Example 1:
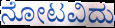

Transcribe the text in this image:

ನೋಟವಿದು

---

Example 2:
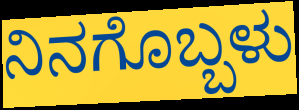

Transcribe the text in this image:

ನಿನಗೊಬ್ಬಳು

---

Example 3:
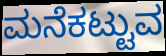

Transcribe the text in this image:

ಮನೆಕಟ್ಟುವ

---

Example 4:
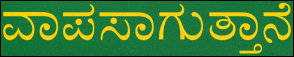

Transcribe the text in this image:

ವಾಪಸಾಗುತ್ತಾನೆ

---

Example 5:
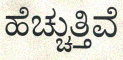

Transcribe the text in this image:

ಹೆಚ್ಚುತ್ತಿವೆ